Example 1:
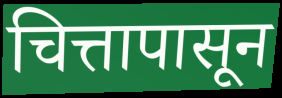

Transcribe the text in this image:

चित्तापासून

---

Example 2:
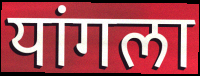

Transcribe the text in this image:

यांगला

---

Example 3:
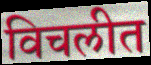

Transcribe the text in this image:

विचलीत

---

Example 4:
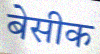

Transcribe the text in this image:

बेसीक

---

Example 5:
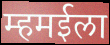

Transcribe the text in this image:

म्हमईला